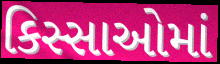
કિસ્સાઓમાં